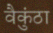
वैकुंठा